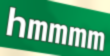
hmmmm